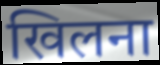
खिलना